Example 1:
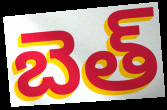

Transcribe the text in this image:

బెత్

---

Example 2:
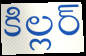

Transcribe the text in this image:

కిల్లర్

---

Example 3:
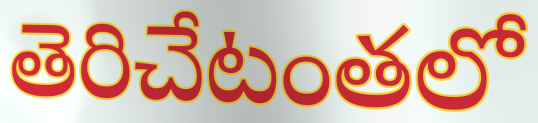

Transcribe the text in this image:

తెరిచేటంతలో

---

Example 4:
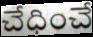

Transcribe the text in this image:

చేధించే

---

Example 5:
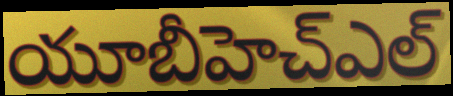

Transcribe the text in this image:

యూబీహెచ్ఎల్